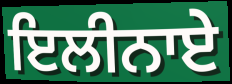
ਇਲੀਨਾਏ